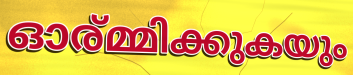
ഓര്മ്മിക്കുകയും